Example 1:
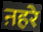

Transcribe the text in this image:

ऩहरे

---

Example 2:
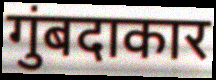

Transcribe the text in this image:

गुंबदाकार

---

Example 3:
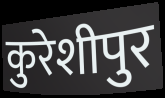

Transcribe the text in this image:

कुरेशीपुर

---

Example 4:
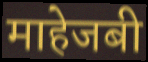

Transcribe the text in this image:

माहेजबी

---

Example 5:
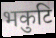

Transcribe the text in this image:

भकुटि